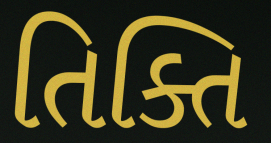
તિક્તિ